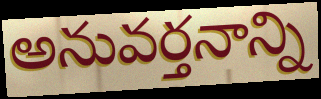
అనువర్తనాన్ని